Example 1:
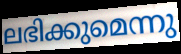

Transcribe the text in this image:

ലഭിക്കുമെന്നു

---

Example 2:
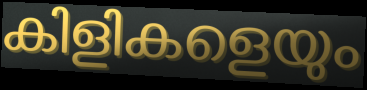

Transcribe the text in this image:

കിളികളെയും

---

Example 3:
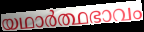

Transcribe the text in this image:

യഥാർത്ഥഭാവം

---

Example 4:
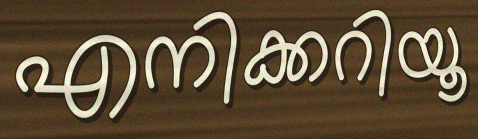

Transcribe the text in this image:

എനിക്കറിയൂ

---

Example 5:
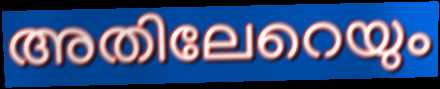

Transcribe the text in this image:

അതിലേറെയും